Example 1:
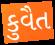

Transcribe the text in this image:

કુવૈત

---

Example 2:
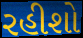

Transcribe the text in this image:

રહીશો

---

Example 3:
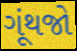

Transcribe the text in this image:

ગૂંથજો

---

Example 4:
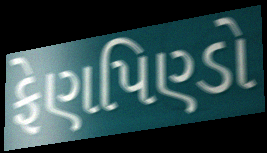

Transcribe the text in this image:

ફેણપિણ્ડો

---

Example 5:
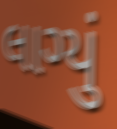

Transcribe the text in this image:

લાગ્યું